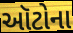
ઑટોના